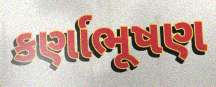
કર્ણાભૂષણ